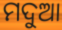
ମଦୁଆ